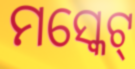
ମସ୍କେଟ୍